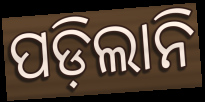
ପଡ଼ିଲାନି